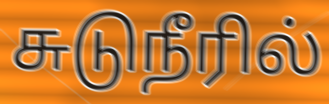
சுடுநீரில்